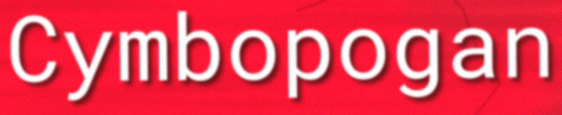
Cymbopogan